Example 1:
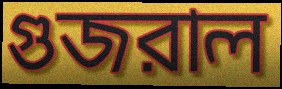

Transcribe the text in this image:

গুজরাল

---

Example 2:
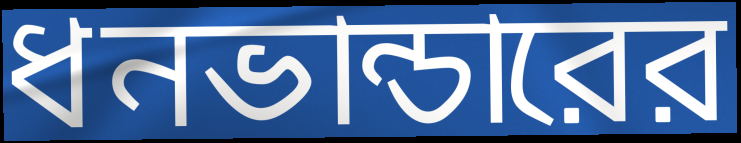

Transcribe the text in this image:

ধনভান্ডারের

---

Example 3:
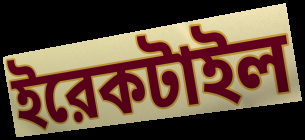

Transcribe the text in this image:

ইরেকটাইল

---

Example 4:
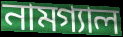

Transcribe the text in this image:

নামগ্যাল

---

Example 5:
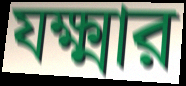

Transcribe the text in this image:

যক্ষ্মার